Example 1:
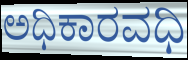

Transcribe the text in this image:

ಅಧಿಕಾರವಧಿ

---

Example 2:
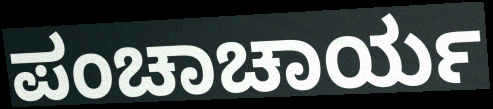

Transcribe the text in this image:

ಪಂಚಾಚಾರ್ಯ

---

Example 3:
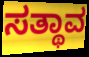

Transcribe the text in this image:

ಸತ್ಥಾವ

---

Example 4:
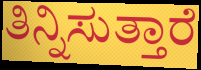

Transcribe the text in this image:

ತಿನ್ನಿಸುತ್ತಾರೆ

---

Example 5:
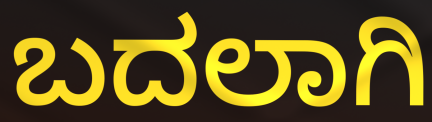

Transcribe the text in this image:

ಬದಲಾಗಿ